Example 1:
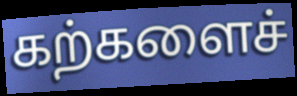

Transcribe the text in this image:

கற்களைச்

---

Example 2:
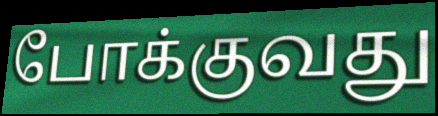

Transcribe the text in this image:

போக்குவது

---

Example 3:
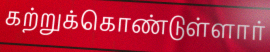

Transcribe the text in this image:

கற்றுக்கொண்டுள்ளார்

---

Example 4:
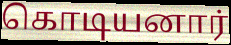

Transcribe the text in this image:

கொடியனார்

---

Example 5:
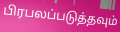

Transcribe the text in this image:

பிரபலப்படுத்தவும்